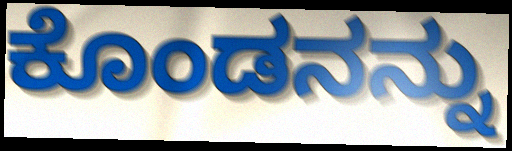
ಕೊಂಡನನ್ನು